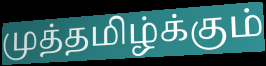
முத்தமிழ்க்கும்